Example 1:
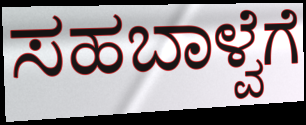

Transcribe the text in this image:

ಸಹಬಾಳ್ವೆಗೆ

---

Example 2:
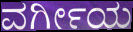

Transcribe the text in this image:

ವರ್ಗೀಯ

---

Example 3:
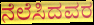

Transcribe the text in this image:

ನೆಲೆಸಿದವರ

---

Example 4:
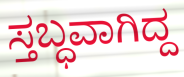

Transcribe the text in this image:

ಸ್ತಬ್ಧವಾಗಿದ್ದ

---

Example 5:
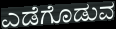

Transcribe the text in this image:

ಎಡೆಗೊಡುವ